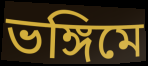
ভঙ্গিমে